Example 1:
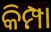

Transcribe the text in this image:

କିମ୍ପା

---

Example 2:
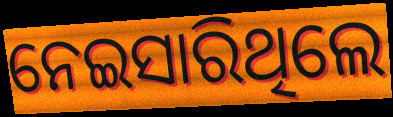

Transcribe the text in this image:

ନେଇସାରିଥିଲେ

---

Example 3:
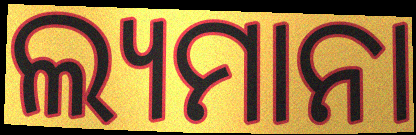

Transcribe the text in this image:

ଲ୍ୟମାନା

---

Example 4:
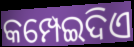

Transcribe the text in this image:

କମ୍ପେଇଦିଏ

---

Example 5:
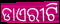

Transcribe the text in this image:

ଡାଏରୀଟି